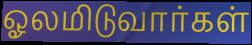
ஓலமிடுவார்கள்